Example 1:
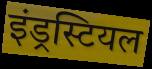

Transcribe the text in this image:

इंड्रस्टियल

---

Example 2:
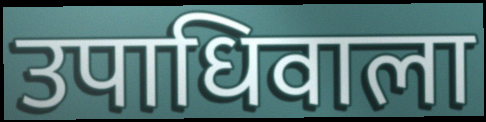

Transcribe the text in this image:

उपाधिवाला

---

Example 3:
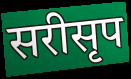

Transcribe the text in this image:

सरीसृप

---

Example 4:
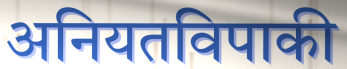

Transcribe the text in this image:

अनियतविपाकी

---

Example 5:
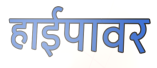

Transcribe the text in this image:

हाईपावर